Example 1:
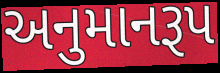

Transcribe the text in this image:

અનુમાનરૂપ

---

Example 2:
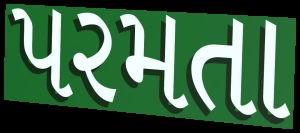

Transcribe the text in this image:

પરમતા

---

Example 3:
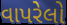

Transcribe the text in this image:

વાપરેલો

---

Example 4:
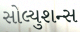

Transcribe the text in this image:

સોલ્યુશન્સ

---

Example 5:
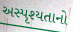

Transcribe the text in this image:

અસ્પૃશ્યતાનો